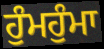
ਹੁੰਮਹੁੰਮਾ